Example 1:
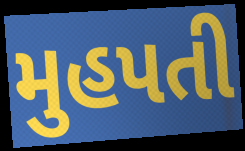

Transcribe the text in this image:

મુહપતી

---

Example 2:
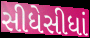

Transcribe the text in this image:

સીધેસીધાં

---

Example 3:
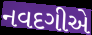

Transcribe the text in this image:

નવદગીએ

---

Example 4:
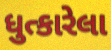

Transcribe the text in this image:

ધુત્કારેલા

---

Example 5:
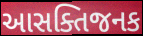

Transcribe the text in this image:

આસક્તિજનક